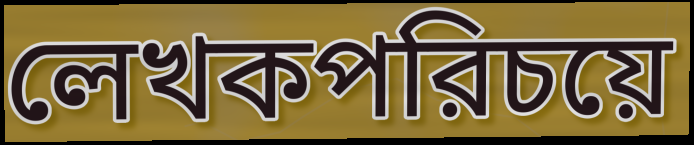
লেখকপরিচয়ে